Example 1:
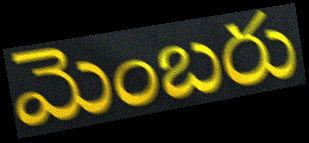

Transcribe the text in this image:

మెంబరు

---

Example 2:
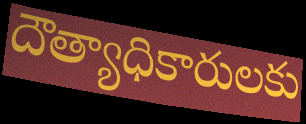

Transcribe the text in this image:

దౌత్యాధికారులకు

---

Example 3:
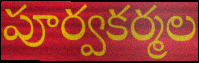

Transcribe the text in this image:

పూర్వకర్మల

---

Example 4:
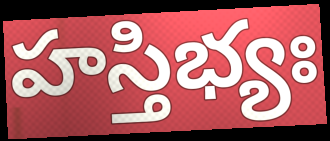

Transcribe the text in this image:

హస్తిభ్యః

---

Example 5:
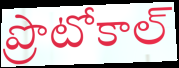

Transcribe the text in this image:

ప్రొటోకాల్